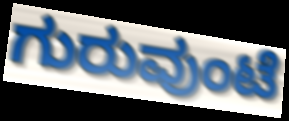
ಗುರುವುಂಟೆ